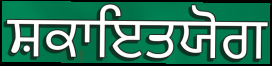
ਸ਼ਕਾਇਤਯੋਗ